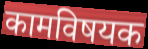
कामविषयक